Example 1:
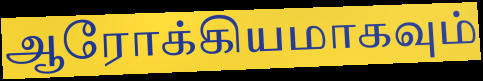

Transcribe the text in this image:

ஆரோக்கியமாகவும்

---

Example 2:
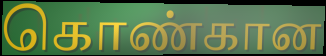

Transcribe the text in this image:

கொண்கான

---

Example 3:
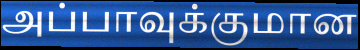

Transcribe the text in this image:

அப்பாவுக்குமான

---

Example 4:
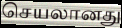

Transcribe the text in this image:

செயலானது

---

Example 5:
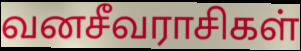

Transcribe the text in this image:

வனசீவராசிகள்